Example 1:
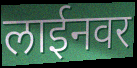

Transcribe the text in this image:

लाईनवर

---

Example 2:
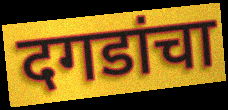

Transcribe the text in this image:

दगडांचा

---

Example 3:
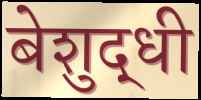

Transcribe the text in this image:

बेशुद्धी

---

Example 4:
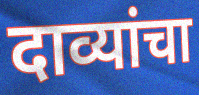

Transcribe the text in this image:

दाव्यांचा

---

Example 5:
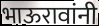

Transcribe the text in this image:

भाऊरावांनी